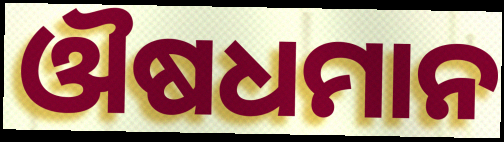
ଔଷଧମାନ